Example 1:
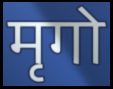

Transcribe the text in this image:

मृगो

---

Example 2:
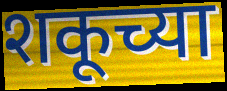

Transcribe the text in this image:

शकूच्या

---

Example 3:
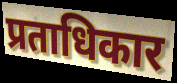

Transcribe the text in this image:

प्रताधिकार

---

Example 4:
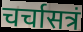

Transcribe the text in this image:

चर्चासत्रं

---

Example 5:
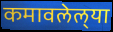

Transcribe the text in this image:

कमावलेल्या